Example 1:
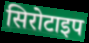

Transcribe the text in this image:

सिरोटाइप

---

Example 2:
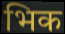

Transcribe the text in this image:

भिक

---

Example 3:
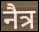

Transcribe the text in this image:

नैत्र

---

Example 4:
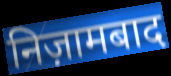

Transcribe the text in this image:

निज़ामबाद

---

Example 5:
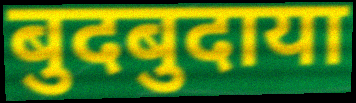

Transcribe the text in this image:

बुदबुदाया